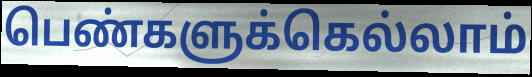
பெண்களுக்கெல்லாம்